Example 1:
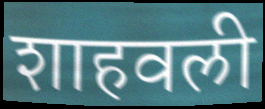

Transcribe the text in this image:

शाहवली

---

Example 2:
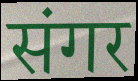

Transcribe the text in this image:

संगर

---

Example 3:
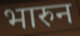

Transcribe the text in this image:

भारुन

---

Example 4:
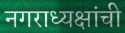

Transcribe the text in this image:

नगराध्यक्षांची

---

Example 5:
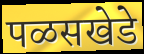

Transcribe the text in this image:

पळसखेडे